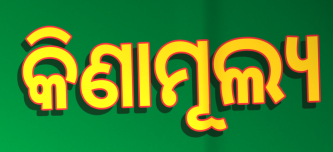
କିଣାମୂଲ୍ୟ